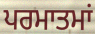
ਪਰਮਾਤਮਾਂ